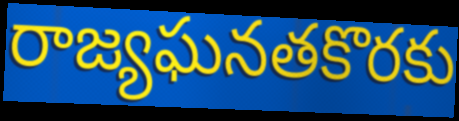
రాజ్యఘనతకొరకు